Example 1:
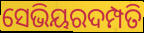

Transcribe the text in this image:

ସେଭିୟରଦମ୍ପତି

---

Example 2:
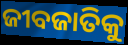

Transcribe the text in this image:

ଜୀବଜାତିକୁ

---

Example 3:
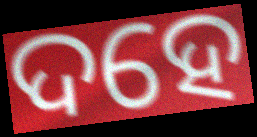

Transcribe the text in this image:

ଦହେ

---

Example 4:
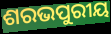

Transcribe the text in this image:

ଶରଭପୁରୀୟ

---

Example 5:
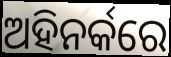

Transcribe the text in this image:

ଅହିନର୍କରେ